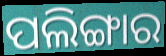
ପଲିଙ୍ଗାର